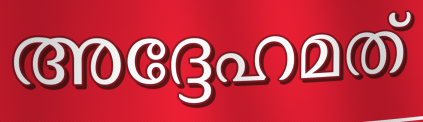
അദ്ദേഹമത്